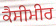
ਕੈਸੀਮੀਰ